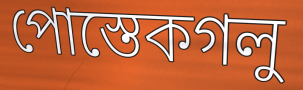
পোস্তেকগলু